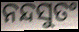
ନନ୍ଦସୁତଂ